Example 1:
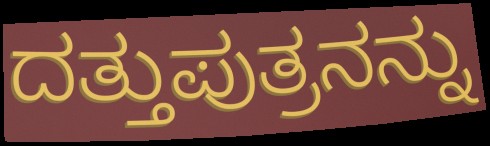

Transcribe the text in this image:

ದತ್ತುಪುತ್ರನನ್ನು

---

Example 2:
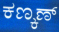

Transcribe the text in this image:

ಕಣ್ಕಣ್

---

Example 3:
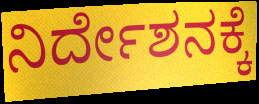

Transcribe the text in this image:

ನಿರ್ದೇಶನಕ್ಕೆ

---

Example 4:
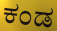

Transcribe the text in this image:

ಕಂಡ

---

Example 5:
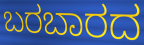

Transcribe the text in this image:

ಬರಬಾರದ